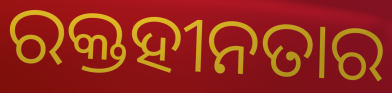
ରକ୍ତହୀନତାର